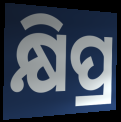
କ୍ଷିପ୍ର